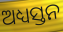
ଅଧ୍ୟସ୍ତନ